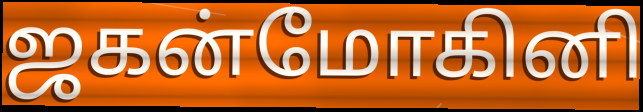
ஜகன்மோகினி